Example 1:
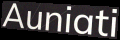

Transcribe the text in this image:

Auniati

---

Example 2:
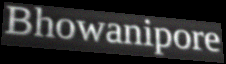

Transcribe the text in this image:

Bhowanipore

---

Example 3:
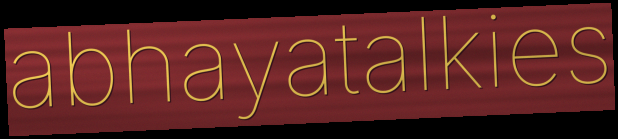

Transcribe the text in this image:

abhayatalkies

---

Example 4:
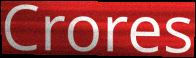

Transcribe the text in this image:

Crores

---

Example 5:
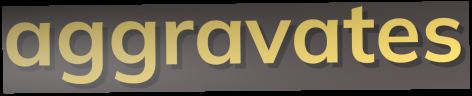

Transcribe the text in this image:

aggravates